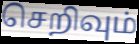
செறிவும்